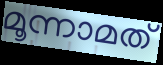
മൂന്നാമത്